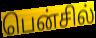
பென்சில்